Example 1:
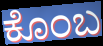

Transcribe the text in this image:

ಕೊಂಬ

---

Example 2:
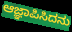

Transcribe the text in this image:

ಆಜ್ಞಾಪಿಸಿದನು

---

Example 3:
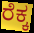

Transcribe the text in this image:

ರೆಕ್ಕ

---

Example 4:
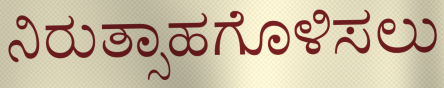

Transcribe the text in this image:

ನಿರುತ್ಸಾಹಗೊಳಿಸಲು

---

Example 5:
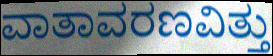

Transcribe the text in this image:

ವಾತಾವರಣವಿತ್ತು